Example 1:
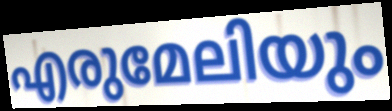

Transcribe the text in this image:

എരുമേലിയും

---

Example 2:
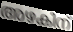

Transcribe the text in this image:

അഴകിന്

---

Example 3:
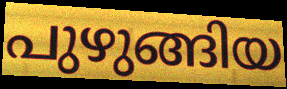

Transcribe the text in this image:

പുഴുങ്ങിയ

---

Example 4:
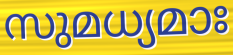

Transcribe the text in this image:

സുമധ്യമാഃ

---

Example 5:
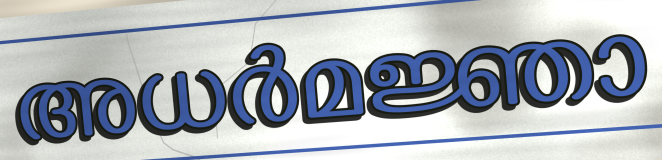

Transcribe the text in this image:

അധർമജ്ഞാ